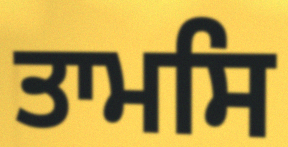
ਤਾਮਸਿ